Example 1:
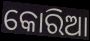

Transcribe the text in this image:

କୋରିଆ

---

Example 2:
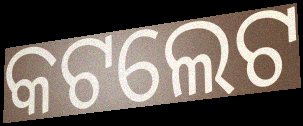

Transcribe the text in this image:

କଟଲେଟ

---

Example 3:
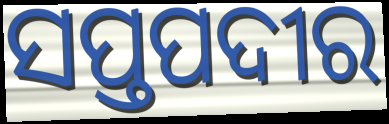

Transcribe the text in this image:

ସପ୍ତପଦୀର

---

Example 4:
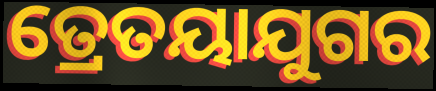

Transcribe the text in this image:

ତ୍ରେତୟାଯୁଗର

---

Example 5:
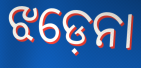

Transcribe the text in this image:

ଝଡ଼େନା